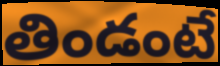
తిండంటే